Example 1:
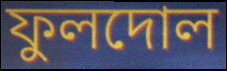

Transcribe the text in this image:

ফুলদোল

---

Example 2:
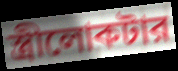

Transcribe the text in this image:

স্ত্রীলোকটার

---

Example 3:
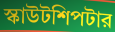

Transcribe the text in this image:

স্কাউটশিপটার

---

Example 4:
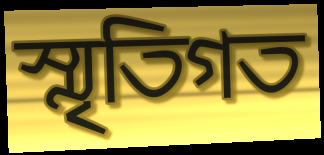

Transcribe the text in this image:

স্মৃতিগত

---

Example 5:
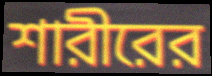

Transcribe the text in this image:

শারীরের